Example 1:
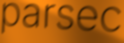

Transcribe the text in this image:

parsec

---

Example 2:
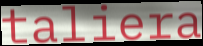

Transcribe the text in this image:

taliera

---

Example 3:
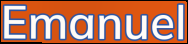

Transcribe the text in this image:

Emanuel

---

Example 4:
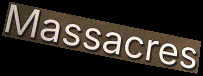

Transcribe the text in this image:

Massacres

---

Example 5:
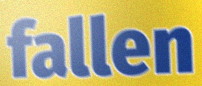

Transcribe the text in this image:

fallen